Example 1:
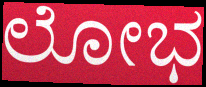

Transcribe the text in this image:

ಲೋಭ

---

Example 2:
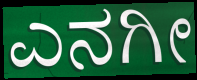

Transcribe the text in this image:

ಎನಗೀ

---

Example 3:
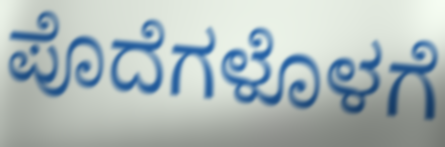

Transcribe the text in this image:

ಪೊದೆಗಳೊಳಗೆ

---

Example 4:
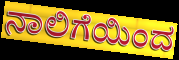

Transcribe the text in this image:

ನಾಲಿಗೆಯಿಂದ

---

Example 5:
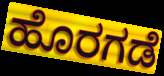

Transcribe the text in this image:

ಹೊರಗಡೆ